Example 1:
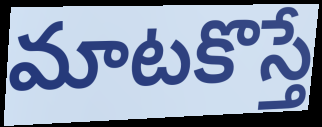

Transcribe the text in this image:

మాటకొస్తే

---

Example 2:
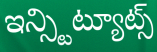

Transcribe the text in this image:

ఇన్స్టిట్యూట్స్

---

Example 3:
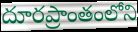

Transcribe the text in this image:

దూరప్రాంతంలోని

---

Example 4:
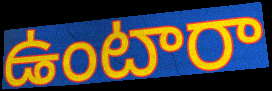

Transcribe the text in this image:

ఉంటారా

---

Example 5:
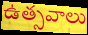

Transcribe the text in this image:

ఉత్సవాలు